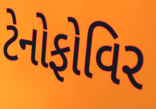
ટેનોફોવિર